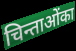
चिन्ताओंका